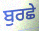
ਬੁਰਛੇ